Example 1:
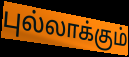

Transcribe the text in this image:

புல்லாக்கும்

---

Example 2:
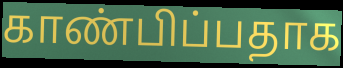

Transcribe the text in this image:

காண்பிப்பதாக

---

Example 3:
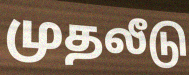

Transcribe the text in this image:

முதலீடு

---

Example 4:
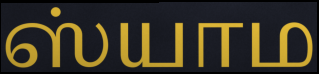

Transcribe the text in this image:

ஸ்யாம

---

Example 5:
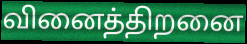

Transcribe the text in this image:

வினைத்திறனை